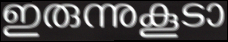
ഇരുന്നുകൂടാ